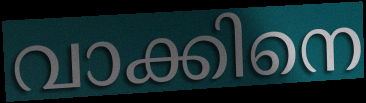
വാക്കിനെ